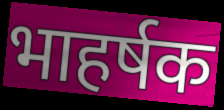
भाहर्षक